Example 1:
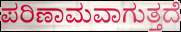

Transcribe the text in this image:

ಪರಿಣಾಮವಾಗುತ್ತದೆ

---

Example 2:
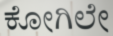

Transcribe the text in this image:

ಕೋಗಿಲೇ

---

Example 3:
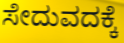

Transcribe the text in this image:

ಸೇದುವದಕ್ಕೆ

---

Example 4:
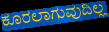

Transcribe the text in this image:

ಕೂರಲಾಗುವುದಿಲ್ಲ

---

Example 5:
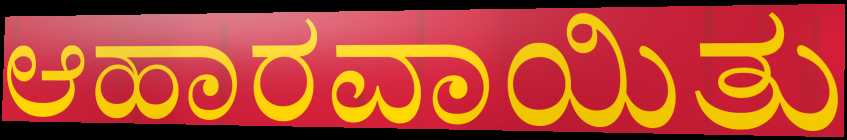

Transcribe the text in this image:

ಆಹಾರವಾಯಿತು